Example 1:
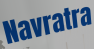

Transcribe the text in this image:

Navratra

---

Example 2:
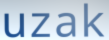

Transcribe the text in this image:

uzak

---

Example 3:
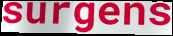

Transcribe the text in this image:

surgens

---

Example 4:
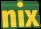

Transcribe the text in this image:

nix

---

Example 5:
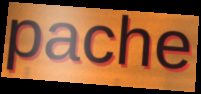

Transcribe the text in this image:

pache